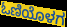
ಓಣಿಯೊಳಗ